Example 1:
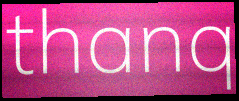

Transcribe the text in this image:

thanq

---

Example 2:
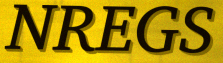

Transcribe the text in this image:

NREGS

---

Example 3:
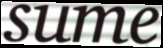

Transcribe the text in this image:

sume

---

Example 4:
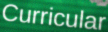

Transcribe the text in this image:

Curricular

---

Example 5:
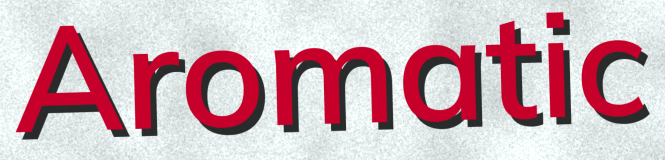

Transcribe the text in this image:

Aromatic